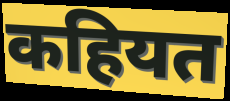
कहियत